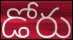
డోరు